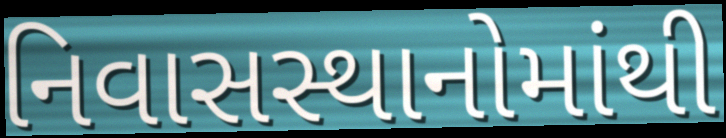
નિવાસસ્થાનોમાંથી